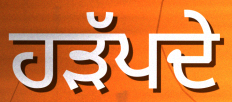
ਹੜੱਪਦੇ